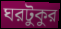
ঘরটুকুর